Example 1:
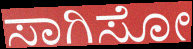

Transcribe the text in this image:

ಸಾಗಿಸೋ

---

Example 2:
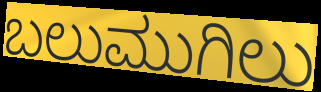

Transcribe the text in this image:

ಬಲುಮುಗಿಲು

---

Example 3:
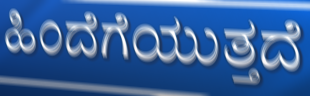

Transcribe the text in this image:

ಹಿಂದೆಗೆಯುತ್ತದೆ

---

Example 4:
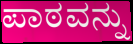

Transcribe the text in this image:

ಪಾಠವನ್ನು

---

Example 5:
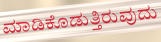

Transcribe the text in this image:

ಮಾಡಿಕೊಡುತ್ತಿರುವುದು